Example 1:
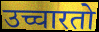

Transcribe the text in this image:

उच्चारतो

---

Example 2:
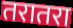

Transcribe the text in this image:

तरातरा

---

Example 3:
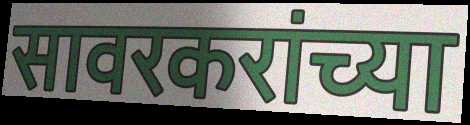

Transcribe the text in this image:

सावरकरांच्या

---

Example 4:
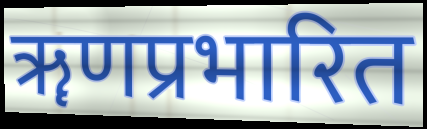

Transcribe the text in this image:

ॠणप्रभारित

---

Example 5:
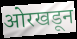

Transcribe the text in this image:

ओरखडून